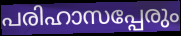
പരിഹാസപ്പേരും